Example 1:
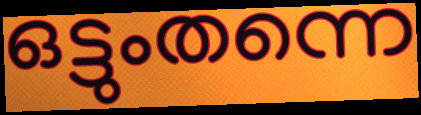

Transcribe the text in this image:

ഒട്ടുംതന്നെ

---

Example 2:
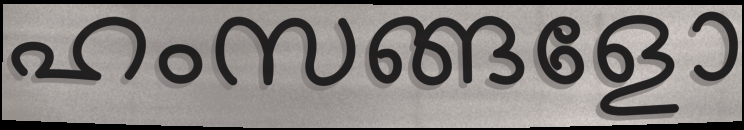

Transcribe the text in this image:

ഹംസങ്ങളോ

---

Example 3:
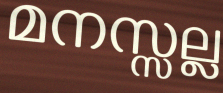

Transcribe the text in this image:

മനസ്സല്ല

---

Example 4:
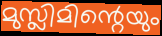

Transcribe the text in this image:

മുസ്ലിമിന്റെയും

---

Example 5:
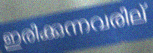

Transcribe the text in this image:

ഇരിക്കുന്നവരില്